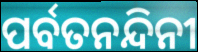
ପର୍ବତନନ୍ଦିନୀ